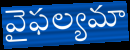
వైఫల్యమా